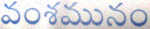
వంశమునం